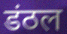
डंठल